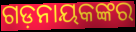
ଗଡ଼ନାୟକଙ୍କର